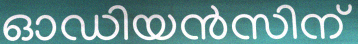
ഓഡിയൻസിന്